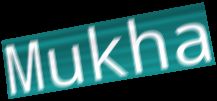
Mukha